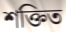
শক্তিত